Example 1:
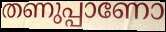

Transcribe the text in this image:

തണുപ്പാണോ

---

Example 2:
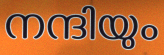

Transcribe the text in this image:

നന്ദിയും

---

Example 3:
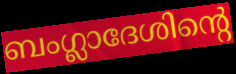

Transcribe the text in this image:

ബംഗ്ലാദേശിന്റെ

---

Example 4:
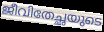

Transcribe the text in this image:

ജീവിതേച്ഛയുടെ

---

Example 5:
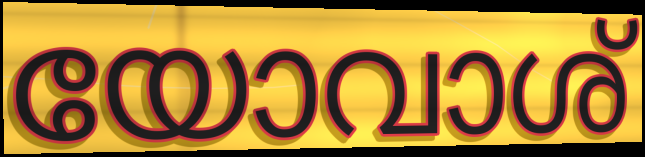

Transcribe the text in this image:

യോവാശ്